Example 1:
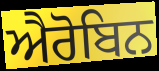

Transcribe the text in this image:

ਐਰੋਬਿਨ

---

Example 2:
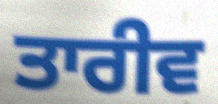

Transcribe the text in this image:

ਤਾਰੀਵ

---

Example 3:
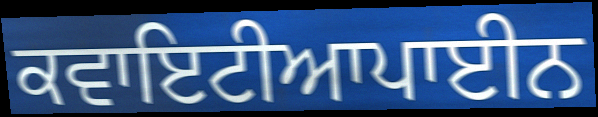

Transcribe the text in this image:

ਕਵਾਇਟੀਆਪਾਈਨ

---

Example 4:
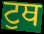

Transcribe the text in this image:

ਟੁਥ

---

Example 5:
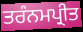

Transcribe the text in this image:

ਤਰੰਨਮਪ੍ਰੀਤ